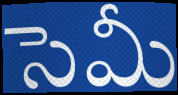
సెమీ